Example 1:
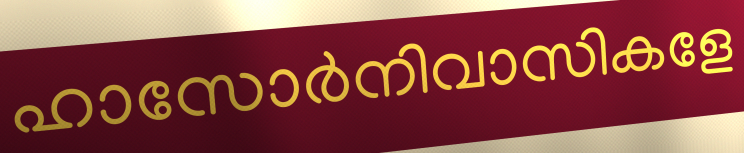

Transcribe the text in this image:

ഹാസോർനിവാസികളേ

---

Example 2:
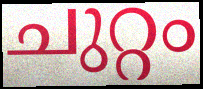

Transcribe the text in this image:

ചുറ്റം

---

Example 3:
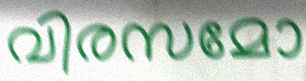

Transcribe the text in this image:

വിരസമോ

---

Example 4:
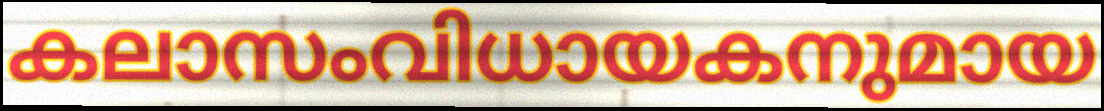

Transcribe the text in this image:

കലാസംവിധായകനുമായ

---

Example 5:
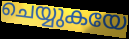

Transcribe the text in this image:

ചെയ്യുകയേ